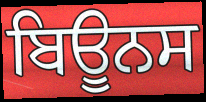
ਬਿਊਨਸ